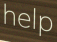
help